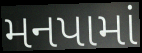
મનપામાં